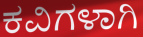
ಕವಿಗಳಾಗಿ